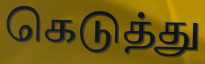
கெடுத்து